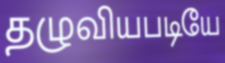
தழுவியபடியே